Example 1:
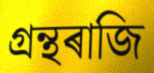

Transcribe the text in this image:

গ্ৰন্থৰাজি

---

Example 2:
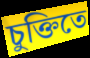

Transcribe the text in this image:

চুক্তিতে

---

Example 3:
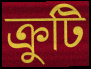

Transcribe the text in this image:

ক্ৰুটি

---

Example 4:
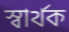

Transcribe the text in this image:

স্বাৰ্থক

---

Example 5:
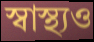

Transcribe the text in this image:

স্বাস্থ্যও